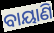
ବାୟାଣି